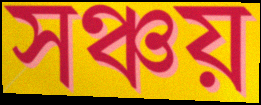
সঞ্চয়